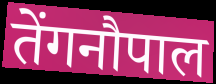
तेंगनौपाल